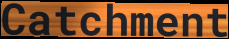
Catchment